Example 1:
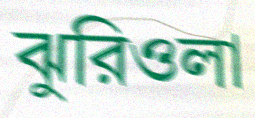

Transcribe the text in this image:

ঝুরিওলা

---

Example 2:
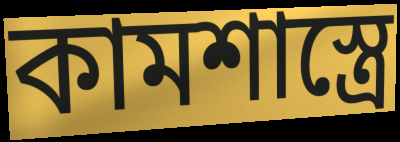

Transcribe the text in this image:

কামশাস্ত্রে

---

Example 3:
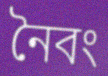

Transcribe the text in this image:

নৈবং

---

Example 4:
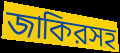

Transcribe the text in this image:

জাকিরসহ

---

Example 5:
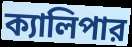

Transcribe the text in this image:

ক্যালিপার